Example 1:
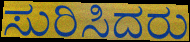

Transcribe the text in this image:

ಸುರಿಸಿದರು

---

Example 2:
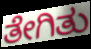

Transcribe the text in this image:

ತೇಗಿತು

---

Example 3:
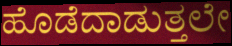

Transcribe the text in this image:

ಹೊಡೆದಾಡುತ್ತಲೇ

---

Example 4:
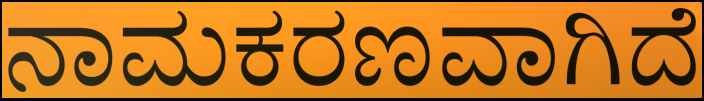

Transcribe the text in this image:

ನಾಮಕರಣವಾಗಿದೆ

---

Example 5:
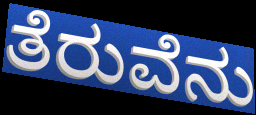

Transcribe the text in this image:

ತೆರುವೆನು